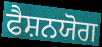
ਫੈਸ਼ਨਯੋਗ